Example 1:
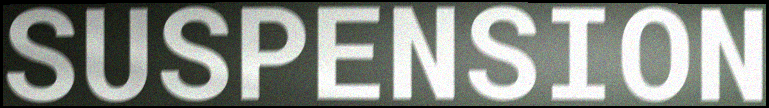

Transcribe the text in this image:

SUSPENSION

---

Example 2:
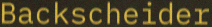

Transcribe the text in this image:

Backscheider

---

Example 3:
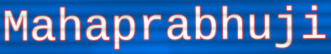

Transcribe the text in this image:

Mahaprabhuji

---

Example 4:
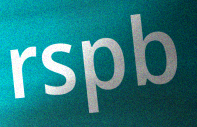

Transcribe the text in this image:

rspb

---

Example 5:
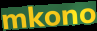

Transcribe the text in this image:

mkono